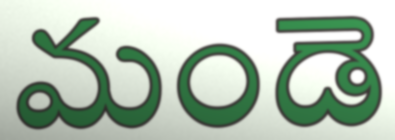
మండె